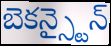
బెకన్స్టైన్